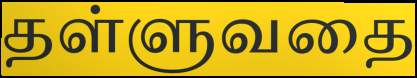
தள்ளுவதை